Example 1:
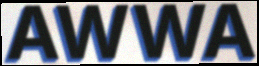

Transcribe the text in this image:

AWWA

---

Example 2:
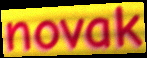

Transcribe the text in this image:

novak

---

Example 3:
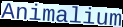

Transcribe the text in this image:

Animalium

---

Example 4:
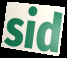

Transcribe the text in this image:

sid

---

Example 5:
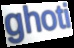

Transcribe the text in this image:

ghoti